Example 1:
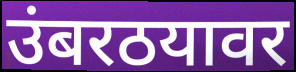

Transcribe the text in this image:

उंबरठयावर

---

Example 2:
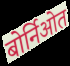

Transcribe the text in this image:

बोर्निओत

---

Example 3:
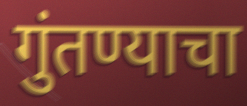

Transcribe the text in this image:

गुंतण्याचा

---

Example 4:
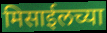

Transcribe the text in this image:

मिसाईलच्या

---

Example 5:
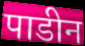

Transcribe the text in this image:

पाडीन